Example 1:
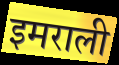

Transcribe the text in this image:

इमराली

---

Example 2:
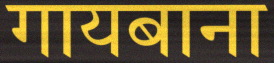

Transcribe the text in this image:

गायबाना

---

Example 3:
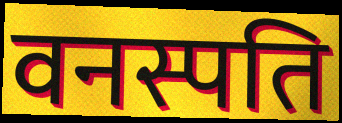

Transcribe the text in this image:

वनस्‍पति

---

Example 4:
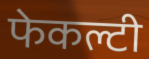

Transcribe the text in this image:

फेकल्टी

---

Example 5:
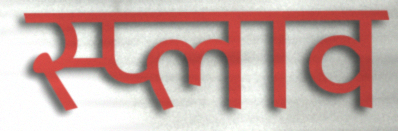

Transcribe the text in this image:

स्प्लाव